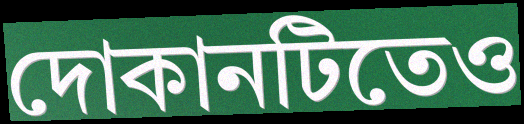
দোকানটিতেও